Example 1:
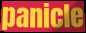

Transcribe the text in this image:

panicle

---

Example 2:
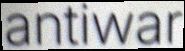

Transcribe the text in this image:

antiwar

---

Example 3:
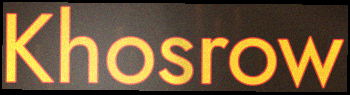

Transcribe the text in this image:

Khosrow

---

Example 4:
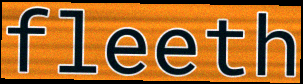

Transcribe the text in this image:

fleeth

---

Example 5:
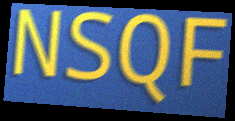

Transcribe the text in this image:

NSQF